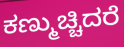
ಕಣ್ಮುಚ್ಚಿದರೆ